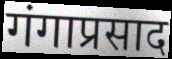
गंगाप्रसाद